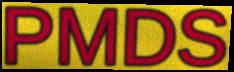
PMDS